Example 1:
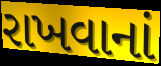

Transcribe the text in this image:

રાખવાનાં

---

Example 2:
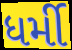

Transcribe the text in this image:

ધર્મી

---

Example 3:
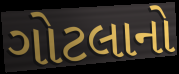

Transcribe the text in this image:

ગોટલાનો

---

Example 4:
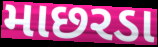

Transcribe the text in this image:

માછરડા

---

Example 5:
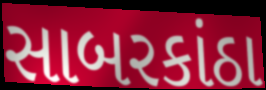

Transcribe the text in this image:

સાબરકાંઠા